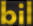
bil